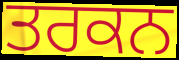
ਤਰਕਨ